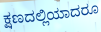
ಕ್ಷಣದಲ್ಲಿಯಾದರೂ